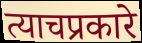
त्याचप्रकारे